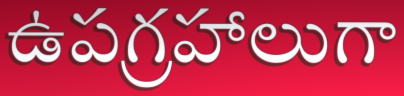
ఉపగ్రహాలుగా